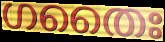
ഗതൈഃ